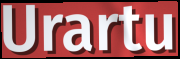
Urartu